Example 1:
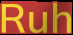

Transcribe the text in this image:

Ruh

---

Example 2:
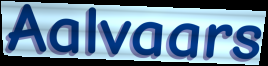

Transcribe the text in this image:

Aalvaars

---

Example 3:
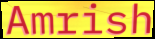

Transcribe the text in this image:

Amrish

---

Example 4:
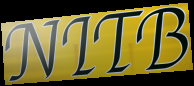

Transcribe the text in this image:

NITB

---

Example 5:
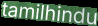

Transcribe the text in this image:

tamilhindu